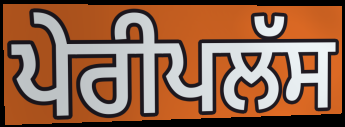
ਪੇਰੀਪਲੱਸ